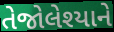
તેજોલેશ્યાને